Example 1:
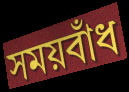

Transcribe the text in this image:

সময়বাঁধ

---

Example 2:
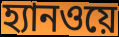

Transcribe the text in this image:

হ্যানওয়ে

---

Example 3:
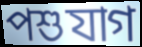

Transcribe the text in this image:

পশুযাগ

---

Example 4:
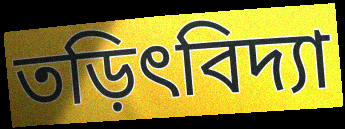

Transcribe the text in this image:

তড়িৎবিদ্যা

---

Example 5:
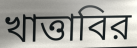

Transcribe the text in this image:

খাত্তাবির